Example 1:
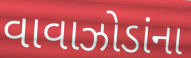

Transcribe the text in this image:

વાવાઝોડાંના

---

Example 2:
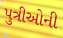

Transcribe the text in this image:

પુત્રીઓની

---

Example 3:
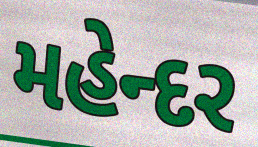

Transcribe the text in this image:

મહેન્દર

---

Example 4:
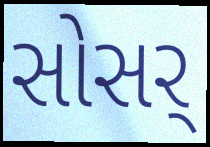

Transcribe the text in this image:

સોસર્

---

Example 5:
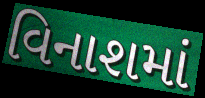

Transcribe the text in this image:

વિનાશમાં